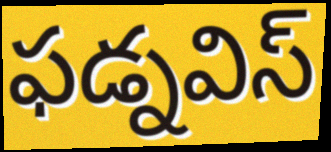
ఫడ్నవిస్